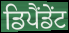
ਡਿਪੈਂਡੇਂਟ